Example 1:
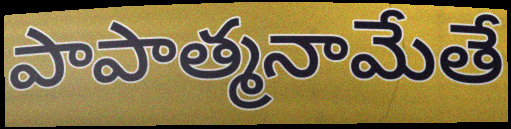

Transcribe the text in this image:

పాపాత్మనామేతే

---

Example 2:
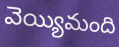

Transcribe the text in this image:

వెయ్యిమంది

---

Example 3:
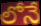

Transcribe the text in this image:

లోనే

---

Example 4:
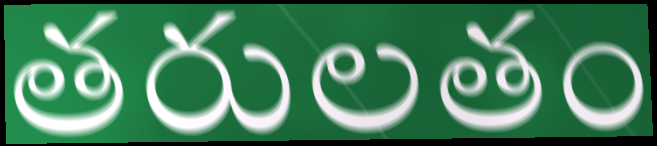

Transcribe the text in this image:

తరులతం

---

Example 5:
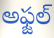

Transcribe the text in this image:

అఫ్జల్